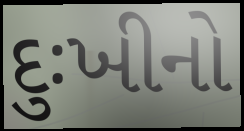
દુઃખીનો